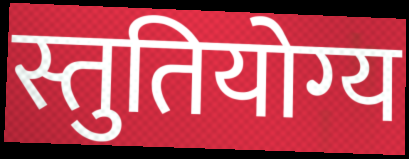
स्तुतियोग्य